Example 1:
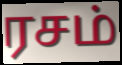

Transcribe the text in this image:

ரசம்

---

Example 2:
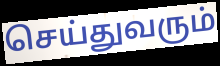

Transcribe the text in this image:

செய்துவரும்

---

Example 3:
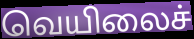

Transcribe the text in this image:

வெயிலைச்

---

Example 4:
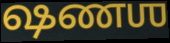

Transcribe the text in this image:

ஷணஶ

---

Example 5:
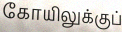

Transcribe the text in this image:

கோயிலுக்குப்